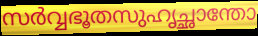
സർവ്വഭൂതസുഹൃച്ഛാന്തോ